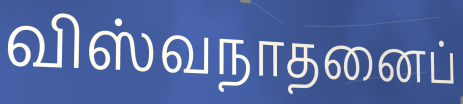
விஸ்வநாதனைப்